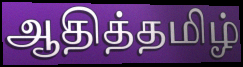
ஆதித்தமிழ்